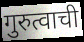
गुरुत्वाची